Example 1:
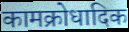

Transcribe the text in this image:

कामक्रोधादिक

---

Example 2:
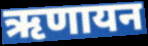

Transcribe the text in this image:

ऋणायन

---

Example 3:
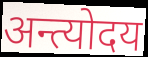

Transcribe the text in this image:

अन्त्योदय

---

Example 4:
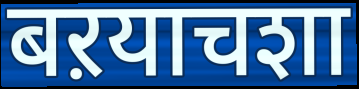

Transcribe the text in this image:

बऱयाचशा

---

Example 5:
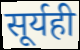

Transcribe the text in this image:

सूर्यही